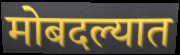
मोबदल्यात